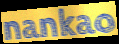
nankao